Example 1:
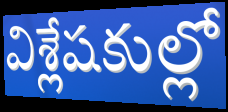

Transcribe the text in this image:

విశ్లేషకుల్లో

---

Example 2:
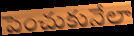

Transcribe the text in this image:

పెంచుకునేలా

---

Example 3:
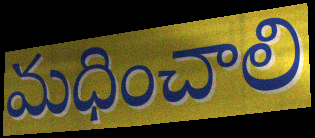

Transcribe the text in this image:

మధించాలి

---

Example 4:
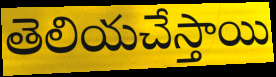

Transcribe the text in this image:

తెలియచేస్తాయి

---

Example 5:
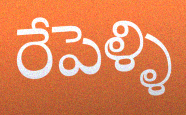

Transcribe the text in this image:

రేపెళ్ళి